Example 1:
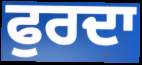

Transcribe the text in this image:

ਫੁਰਦਾ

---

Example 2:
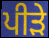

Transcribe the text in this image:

ਪੀੜੇ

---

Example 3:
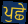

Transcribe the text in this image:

ਪੁਛੇ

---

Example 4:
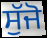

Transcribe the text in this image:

ਸੁੱਜੋ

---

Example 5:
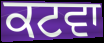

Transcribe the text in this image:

ਕਟਵਾ